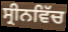
ਸ੍ਰੀਨਵਿੱਚ